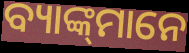
ବ୍ୟାଙ୍କ୍‌ମାନେ